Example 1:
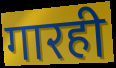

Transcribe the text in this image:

गारही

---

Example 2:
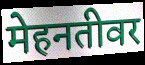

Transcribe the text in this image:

मेहनतीवर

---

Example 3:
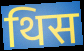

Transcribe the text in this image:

थिस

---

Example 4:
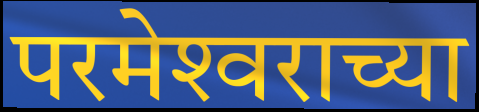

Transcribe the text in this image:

परमेश्‍वराच्या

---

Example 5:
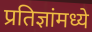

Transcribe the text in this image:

प्रतिज्ञांमध्ये